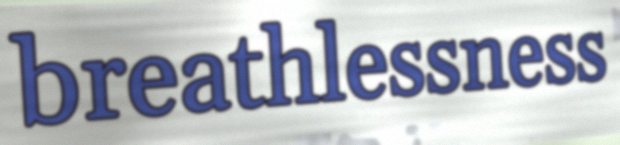
breathlessness